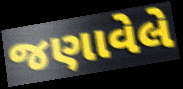
જણાવેલે